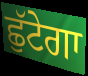
ਛੁੱਟੇਗਾ